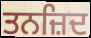
ਤਨਜ਼ਿਦ